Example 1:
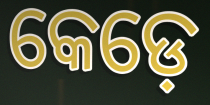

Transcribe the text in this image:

କେଡ଼େ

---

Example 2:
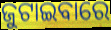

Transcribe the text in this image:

ଜୁଟାଇବାରେ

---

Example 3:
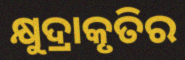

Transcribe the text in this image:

କ୍ଷୁଦ୍ରାକୃତିର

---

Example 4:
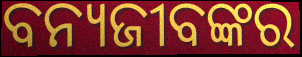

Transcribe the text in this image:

ବନ୍ୟଜୀବଙ୍କର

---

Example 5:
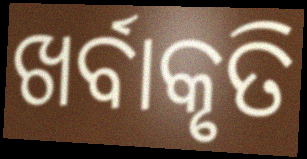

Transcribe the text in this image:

ଖର୍ବାକୃତି